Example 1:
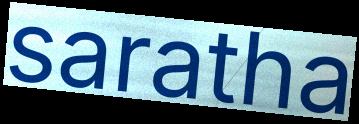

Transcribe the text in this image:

saratha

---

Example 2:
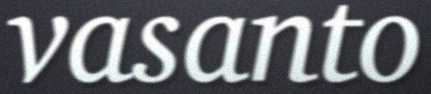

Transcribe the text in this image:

vasanto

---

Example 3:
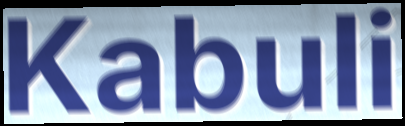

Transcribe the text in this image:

Kabuli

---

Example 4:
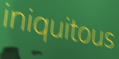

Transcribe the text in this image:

iniquitous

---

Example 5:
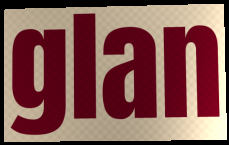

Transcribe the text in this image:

glan